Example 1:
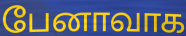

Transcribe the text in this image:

பேனாவாக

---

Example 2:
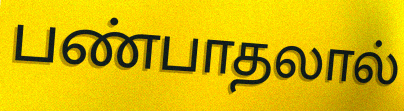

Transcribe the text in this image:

பண்பாதலால்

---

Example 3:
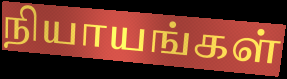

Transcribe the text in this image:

நியாயங்கள்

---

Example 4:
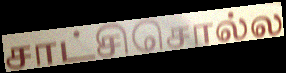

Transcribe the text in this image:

சாட்சிசொல்ல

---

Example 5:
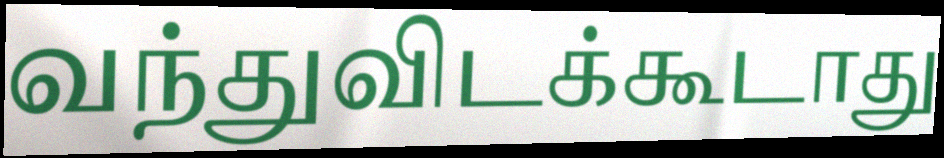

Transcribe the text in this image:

வந்துவிடக்கூடாது